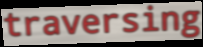
traversing